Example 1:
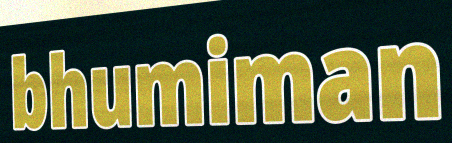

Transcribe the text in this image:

bhumiman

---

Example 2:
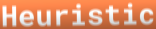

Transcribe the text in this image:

Heuristic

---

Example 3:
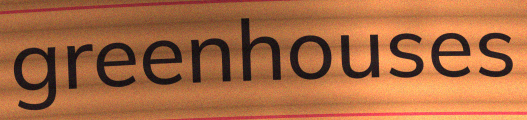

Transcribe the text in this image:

greenhouses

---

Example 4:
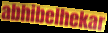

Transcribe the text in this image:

abhibelhekar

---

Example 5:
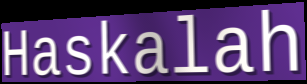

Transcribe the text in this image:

Haskalah